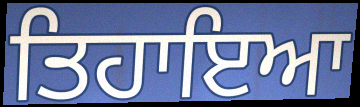
ਤਿਹਾਇਆ